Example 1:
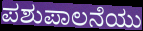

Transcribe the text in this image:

ಪಶುಪಾಲನೆಯು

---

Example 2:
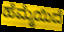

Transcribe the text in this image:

ಹೆಮ್ಮೆಯಿದೆ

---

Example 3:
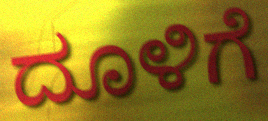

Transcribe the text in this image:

ದೂಳಿಗೆ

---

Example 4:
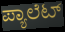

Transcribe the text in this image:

ಪ್ಯಾಲೆಟ್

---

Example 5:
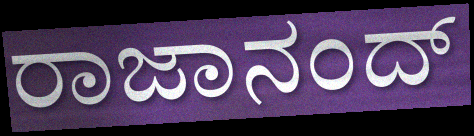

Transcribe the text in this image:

ರಾಜಾನಂದ್